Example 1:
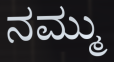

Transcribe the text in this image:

ನಮ್ಮು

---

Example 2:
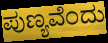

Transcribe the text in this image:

ಪುಣ್ಯವೆಂದು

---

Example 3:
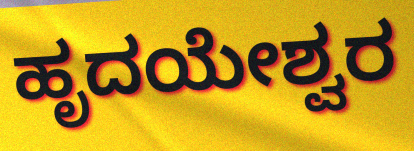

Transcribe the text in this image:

ಹೃದಯೇಶ್ವರ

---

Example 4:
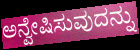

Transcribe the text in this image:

ಅನ್ವೇಷಿಸುವುದನ್ನು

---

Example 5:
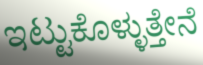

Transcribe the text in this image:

ಇಟ್ಟುಕೊಳ್ಳುತ್ತೇನೆ